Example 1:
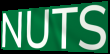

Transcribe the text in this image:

NUTS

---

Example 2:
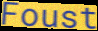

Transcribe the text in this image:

Foust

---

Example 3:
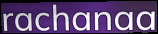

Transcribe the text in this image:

rachanaa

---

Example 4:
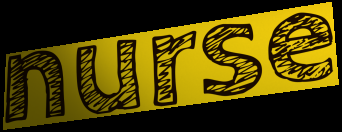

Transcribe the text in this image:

nurse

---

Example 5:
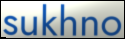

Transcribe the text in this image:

sukhno